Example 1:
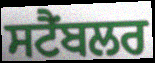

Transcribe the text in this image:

ਸਟੈਂਬਲਰ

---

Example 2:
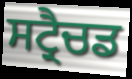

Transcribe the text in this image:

ਸਟ੍ਰੈਚਡ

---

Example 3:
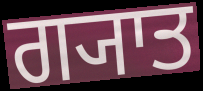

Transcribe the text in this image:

ਗ੍ਯਾਤ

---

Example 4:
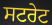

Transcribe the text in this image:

ਸਟਰੇਟ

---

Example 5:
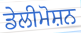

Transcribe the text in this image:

ਡੇਲੀਮੋਸ਼ਨ